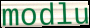
modlu